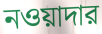
নওয়াদার